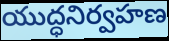
యుద్ధనిర్వహణ